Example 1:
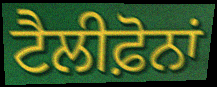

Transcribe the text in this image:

ਟੈਲੀਫ਼ੋਨਾਂ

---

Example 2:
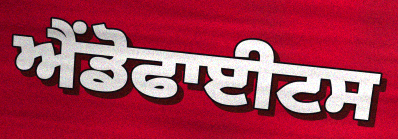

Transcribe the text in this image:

ਐਂਡੋਫਾਈਟਸ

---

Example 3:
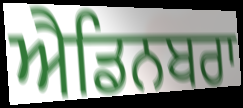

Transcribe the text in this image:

ਐਡਿਨਬਰਾ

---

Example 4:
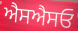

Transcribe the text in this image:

ਐਸਐਸਓ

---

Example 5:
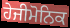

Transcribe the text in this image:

ਹੇਜੀਮੋਨਿਕ